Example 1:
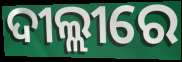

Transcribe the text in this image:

ଦୀଲ୍ଲୀରେ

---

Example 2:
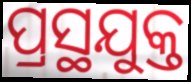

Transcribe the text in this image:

ପ୍ରସ୍ଥଯୁକ୍ତ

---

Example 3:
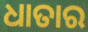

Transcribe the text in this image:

ଧାତାର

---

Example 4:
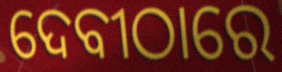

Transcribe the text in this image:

ଦେବୀଠାରେ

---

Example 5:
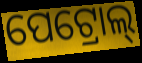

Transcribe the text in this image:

ପେଟ୍ରୋଲ୍